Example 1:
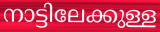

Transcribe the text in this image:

നാട്ടിലേക്കുള്ള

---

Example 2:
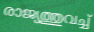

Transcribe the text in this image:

രാജ്യത്തുവച്ച്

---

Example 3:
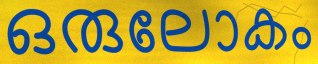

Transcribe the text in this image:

ഒരുലോകം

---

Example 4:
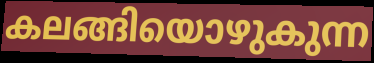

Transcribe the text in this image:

കലങ്ങിയൊഴുകുന്ന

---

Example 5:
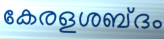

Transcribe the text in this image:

കേരളശബ്ദം